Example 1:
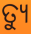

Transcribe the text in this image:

ତ୍ୟୁ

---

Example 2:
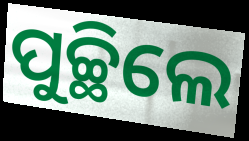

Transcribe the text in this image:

ପୁଚ୍ଛିଲେ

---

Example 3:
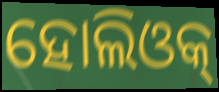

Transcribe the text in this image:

ହୋଲିଓକ୍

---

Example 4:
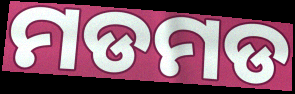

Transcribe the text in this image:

ମଡମଡ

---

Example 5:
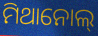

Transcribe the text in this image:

ମିଥାନୋଲ୍